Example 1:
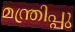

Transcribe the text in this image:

മന്ത്രിപ്പു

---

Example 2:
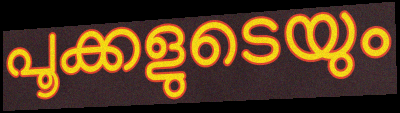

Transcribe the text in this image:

പൂക്കളുടെയും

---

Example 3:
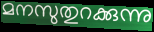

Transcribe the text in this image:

മനസുതുറക്കുന്നു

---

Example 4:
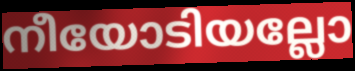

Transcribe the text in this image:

നീയോടിയല്ലോ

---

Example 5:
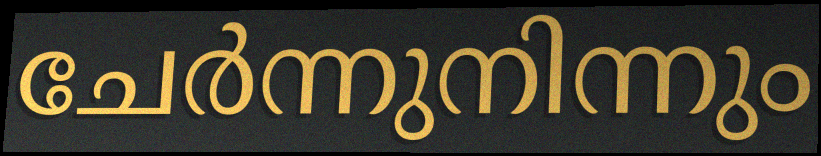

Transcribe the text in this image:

ചേർന്നുനിന്നും